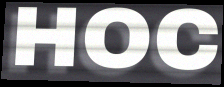
HOC